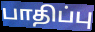
பாதிப்பு